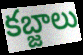
కబ్జాలు